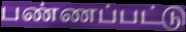
பண்ணப்பட்டு